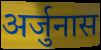
अर्जुनास